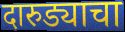
दारुड्याचा